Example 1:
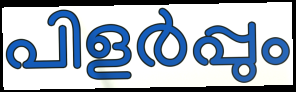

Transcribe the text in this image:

പിളർപ്പും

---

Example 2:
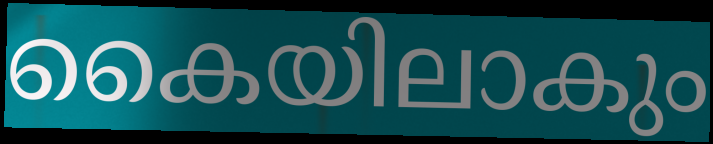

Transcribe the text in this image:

കൈയിലാകും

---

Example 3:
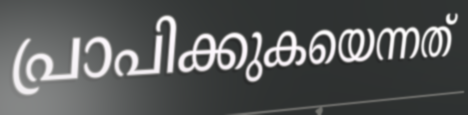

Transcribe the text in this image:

പ്രാപിക്കുകയെന്നത്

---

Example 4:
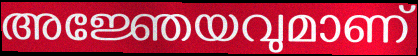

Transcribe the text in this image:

അജ്ഞേയവുമാണ്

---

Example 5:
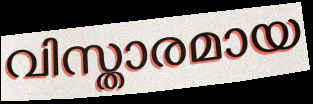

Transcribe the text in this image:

വിസ്താരമായ